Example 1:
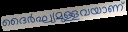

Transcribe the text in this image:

ദൈർഘ്യമുള്ളവയാണ്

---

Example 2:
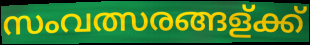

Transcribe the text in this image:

സംവത്സരങ്ങള്ക്ക്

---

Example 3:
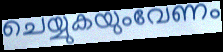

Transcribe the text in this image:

ചെയ്യുകയുംവേണം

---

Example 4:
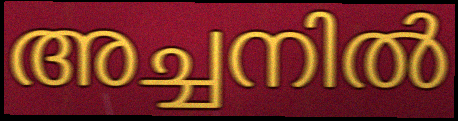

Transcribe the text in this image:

അച്ചനിൽ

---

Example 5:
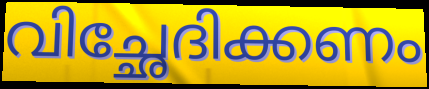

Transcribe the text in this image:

വിച്ഛേദിക്കണം